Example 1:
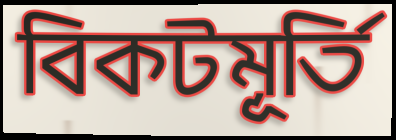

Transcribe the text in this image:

বিকটমূর্তি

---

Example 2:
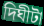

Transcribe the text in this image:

দিঘীটা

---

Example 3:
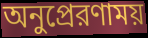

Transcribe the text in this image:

অনুপ্রেরণাময়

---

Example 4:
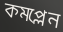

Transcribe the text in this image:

কমপ্লেন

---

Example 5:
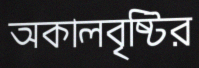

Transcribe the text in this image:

অকালবৃষ্টির